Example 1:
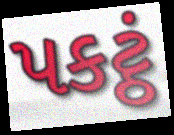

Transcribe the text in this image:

પકટ્ઠં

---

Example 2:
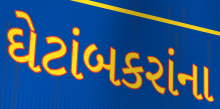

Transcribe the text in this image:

ઘેટાંબકરાંના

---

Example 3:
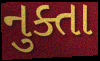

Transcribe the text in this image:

નુક્તા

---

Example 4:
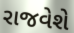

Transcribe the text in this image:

રાજવેશે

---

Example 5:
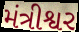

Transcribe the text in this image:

મંત્રીશ્વર